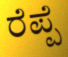
ರೆಪ್ಪೆ